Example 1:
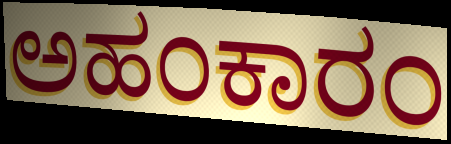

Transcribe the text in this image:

ಅಹಂಕಾರಂ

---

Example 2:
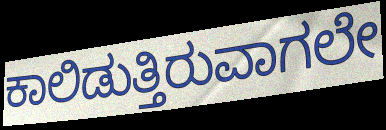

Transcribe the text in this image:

ಕಾಲಿಡುತ್ತಿರುವಾಗಲೇ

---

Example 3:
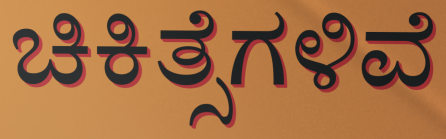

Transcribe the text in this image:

ಚಿಕಿತ್ಸೆಗಳಿವೆ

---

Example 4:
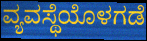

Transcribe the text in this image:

ವ್ಯವಸ್ಥೆಯೊಳಗಡೆ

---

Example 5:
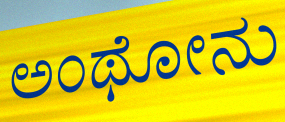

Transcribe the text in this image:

ಅಂಥೋನು